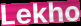
Lekho